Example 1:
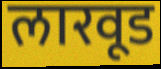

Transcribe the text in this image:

लारवूड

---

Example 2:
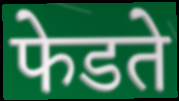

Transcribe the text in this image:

फेडते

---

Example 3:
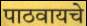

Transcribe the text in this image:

पाठवायचे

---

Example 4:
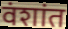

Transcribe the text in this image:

वंशांत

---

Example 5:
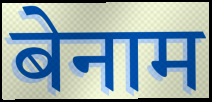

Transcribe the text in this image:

बेनाम